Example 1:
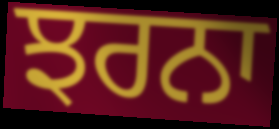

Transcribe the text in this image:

ਝਰਨਾ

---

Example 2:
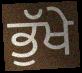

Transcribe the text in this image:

ਭੁੱਖੇ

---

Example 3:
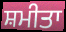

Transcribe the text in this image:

ਸ਼ਮੀਤਾ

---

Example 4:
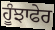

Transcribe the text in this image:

ਹੂੰਝਾਫੇਰ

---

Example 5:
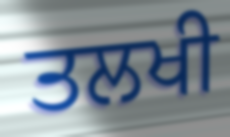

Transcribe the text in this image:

ਤਲਖੀ